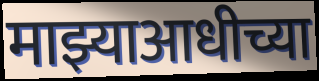
माझ्याआधीच्या